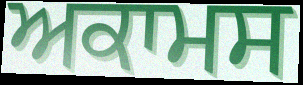
ਅਕਾਮਸ